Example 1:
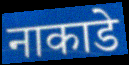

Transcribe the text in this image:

नाकाडे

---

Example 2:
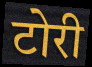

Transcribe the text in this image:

टोरी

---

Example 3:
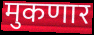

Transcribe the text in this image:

मुकणार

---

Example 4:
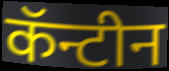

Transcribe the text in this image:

कॅन्टीन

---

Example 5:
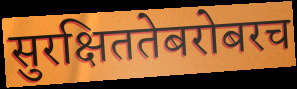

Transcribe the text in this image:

सुरक्षिततेबरोबरच